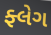
ફ્લેગ